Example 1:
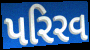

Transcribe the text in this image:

પરિરવ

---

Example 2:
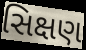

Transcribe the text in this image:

સિક્ષણ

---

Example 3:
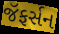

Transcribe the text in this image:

જૅફર્સન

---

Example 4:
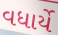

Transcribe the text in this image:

વધાર્યે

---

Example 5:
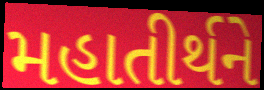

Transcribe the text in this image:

મહાતીર્થને